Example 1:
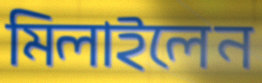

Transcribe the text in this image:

মিলাইলেন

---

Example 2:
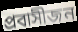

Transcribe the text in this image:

প্রবাসীজন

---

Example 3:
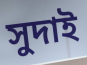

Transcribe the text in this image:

সুদাই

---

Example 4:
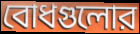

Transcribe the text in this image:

বোধগুলোর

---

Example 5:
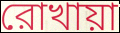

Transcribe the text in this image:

রোখায়া